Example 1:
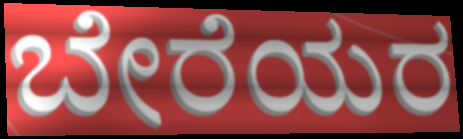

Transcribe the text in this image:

ಬೇರೆಯರ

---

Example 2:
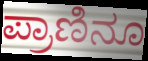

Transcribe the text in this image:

ಪ್ರಾಣಿನೂ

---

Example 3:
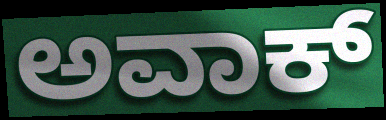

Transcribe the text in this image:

ಅವಾಕ್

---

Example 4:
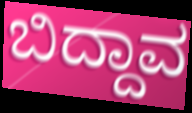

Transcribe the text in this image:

ಬಿದ್ದಾವ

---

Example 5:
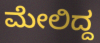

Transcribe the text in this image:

ಮೇಲಿದ್ದ